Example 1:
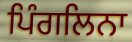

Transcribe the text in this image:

ਪਿੰਗਲਿਨਾ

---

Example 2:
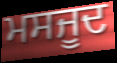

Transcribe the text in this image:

ਮਸਜੂਦ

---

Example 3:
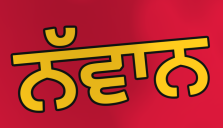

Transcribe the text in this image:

ਨੱਵਾਨ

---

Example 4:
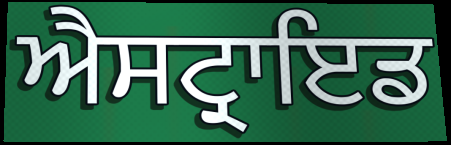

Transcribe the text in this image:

ਐਸਟ੍ਰਾਇਡ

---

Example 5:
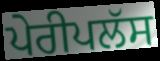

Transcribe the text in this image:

ਪੇਰੀਪਲੱਸ